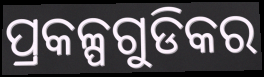
ପ୍ରକଳ୍ପଗୁଡିକର